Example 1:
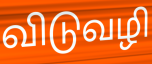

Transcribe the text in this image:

விடுவழி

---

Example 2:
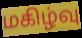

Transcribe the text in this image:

மகிழ்வு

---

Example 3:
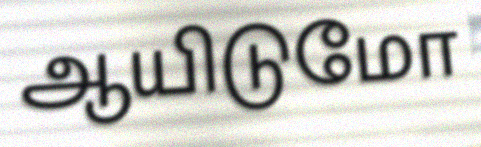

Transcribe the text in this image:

ஆயிடுமோ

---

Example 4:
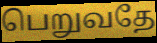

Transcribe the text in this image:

பெறுவதே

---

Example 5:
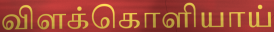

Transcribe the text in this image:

விளக்கொளியாய்